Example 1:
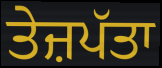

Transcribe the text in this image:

ਤੇਜ਼ਪੱਤਾ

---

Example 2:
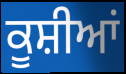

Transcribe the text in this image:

ਕੂਸ਼ੀਆਂ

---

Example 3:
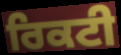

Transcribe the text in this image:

ਰਿਕਟੀ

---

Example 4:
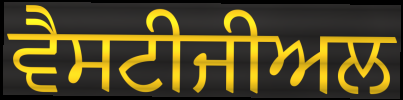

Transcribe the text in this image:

ਵੈਸਟੀਜੀਅਲ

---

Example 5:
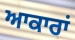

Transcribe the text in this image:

ਆਕਾਰਾਂ